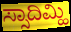
ಸ್ಸಾದಿಮ್ಹಿ